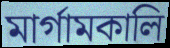
মাৰ্গামকালি